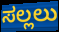
ಸಲ್ಲಲು